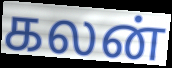
கலன்